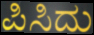
ಪಿಸಿದು